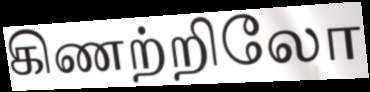
கிணற்றிலோ